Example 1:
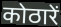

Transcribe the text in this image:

कोठारें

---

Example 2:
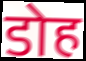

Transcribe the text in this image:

डोह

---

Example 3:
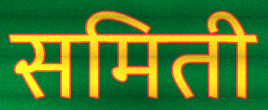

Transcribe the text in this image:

समिती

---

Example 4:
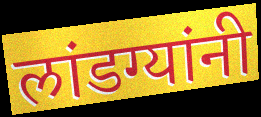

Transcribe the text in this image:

लांडग्यांनी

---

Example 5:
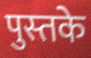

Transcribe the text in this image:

पुस्‍तके